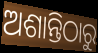
ଅଶାନ୍ତିଠାରୁ